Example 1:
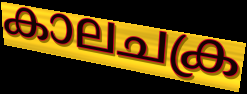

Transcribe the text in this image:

കാലചക്ര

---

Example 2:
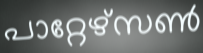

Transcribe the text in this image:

പാറ്റേഴ്സൺ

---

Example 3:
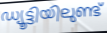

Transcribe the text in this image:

ഡ്യൂട്ടിയിലുണ്ട്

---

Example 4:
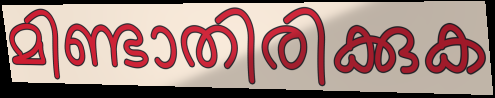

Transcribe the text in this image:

മിണ്ടാതിരിക്കുക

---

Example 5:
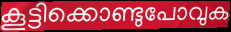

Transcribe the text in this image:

കൂട്ടിക്കൊണ്ടുപോവുക